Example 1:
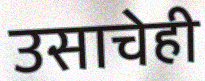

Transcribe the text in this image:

उसाचेही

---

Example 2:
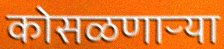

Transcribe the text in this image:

कोसळणाऱ्या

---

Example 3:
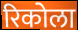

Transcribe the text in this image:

रिकोला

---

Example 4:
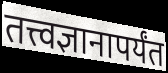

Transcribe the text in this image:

तत्त्वज्ञानापर्यंत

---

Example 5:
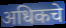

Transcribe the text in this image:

अधिकचे